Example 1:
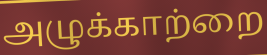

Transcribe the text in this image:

அழுக்காற்றை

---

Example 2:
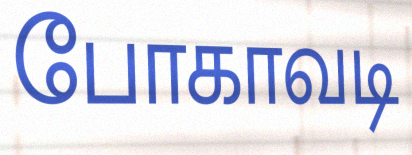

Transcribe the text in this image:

போகாவடி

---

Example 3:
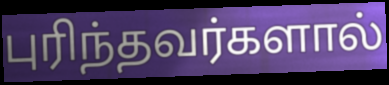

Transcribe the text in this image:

புரிந்தவர்களால்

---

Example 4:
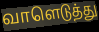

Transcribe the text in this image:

வாளெடுத்து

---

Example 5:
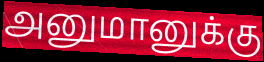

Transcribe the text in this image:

அனுமானுக்கு